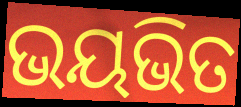
ଭୟଭିତ